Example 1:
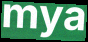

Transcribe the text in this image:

mya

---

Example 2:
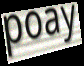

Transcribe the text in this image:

poay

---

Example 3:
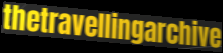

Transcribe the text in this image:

thetravellingarchive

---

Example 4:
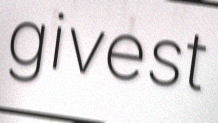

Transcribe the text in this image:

givest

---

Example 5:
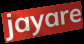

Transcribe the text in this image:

jayare